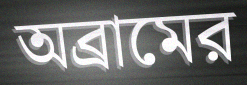
অব্রামের